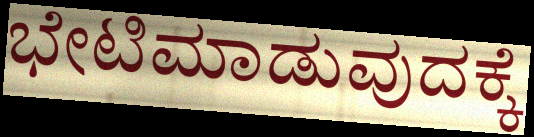
ಭೇಟಿಮಾಡುವುದಕ್ಕೆ